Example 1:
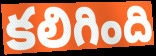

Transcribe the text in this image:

కలిగింది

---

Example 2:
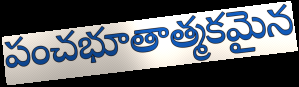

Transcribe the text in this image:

పంచభూతాత్మకమైన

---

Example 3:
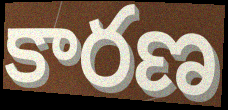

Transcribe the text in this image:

కారణ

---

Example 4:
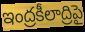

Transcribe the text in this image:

ఇంద్రకీలాద్రిపై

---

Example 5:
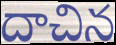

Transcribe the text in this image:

దాచిన